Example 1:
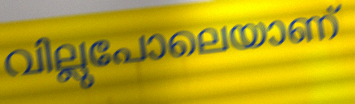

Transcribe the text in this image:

വില്ലുപോലെയാണ്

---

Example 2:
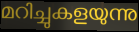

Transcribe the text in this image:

മറിച്ചുകളയുന്നു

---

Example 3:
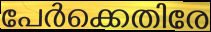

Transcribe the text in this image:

പേർക്കെതിരേ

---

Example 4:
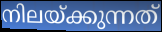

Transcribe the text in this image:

നിലയ്ക്കുന്നത്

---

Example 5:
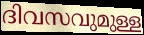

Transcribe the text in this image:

ദിവസവുമുള്ള